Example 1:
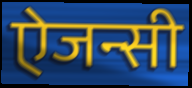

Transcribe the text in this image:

ऐजन्सी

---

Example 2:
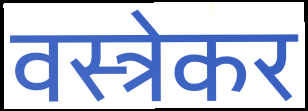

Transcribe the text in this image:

वस्त्रेकर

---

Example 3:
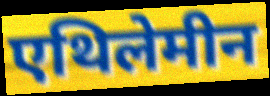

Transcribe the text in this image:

एथिलेमीन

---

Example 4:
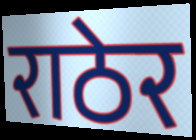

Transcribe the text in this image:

राठेर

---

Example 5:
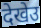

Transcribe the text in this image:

देखेउ